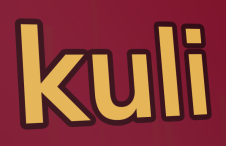
kuli